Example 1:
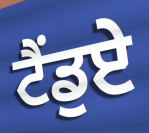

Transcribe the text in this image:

ਟੈਂਡੁਏ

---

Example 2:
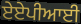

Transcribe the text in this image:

ਏਏਪੀਆਈ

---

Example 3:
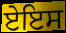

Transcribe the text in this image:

ਏਇਸ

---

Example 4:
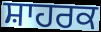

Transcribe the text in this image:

ਸ਼ਾਹਰਕ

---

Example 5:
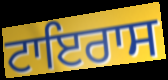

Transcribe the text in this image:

ਟਾਇਰਾਸ